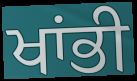
ਖਾਂਭੀ